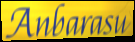
Anbarasu